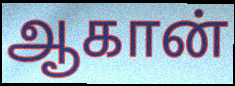
ஆகான்